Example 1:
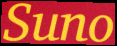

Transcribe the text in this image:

Suno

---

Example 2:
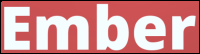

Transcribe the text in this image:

Ember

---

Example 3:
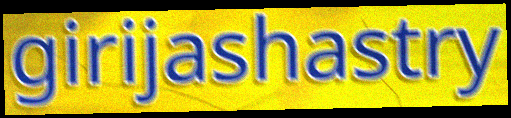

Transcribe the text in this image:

girijashastry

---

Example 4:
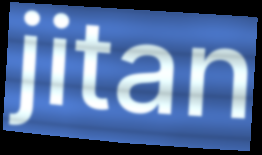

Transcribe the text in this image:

jitan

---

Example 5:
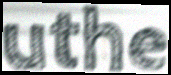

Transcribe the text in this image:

uthe